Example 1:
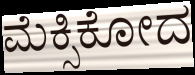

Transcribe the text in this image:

ಮೆಕ್ಸಿಕೋದ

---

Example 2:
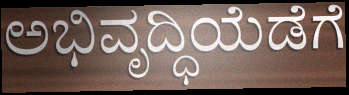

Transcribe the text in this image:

ಅಭಿವೃದ್ಧಿಯೆಡೆಗೆ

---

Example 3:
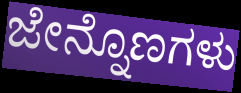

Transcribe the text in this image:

ಜೇನ್ನೊಣಗಳು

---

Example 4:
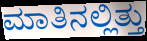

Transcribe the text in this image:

ಮಾತಿನಲ್ಲಿತ್ತು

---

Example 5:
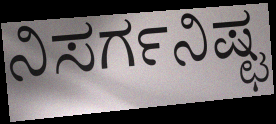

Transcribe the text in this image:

ನಿಸರ್ಗನಿಷ್ಟ